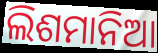
ଲିଶମାନିଆ